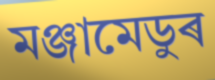
মঞ্জামেডুৰ